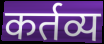
कर्तव्य